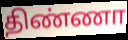
திண்ணா